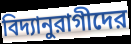
বিদ্যানুরাগীদের